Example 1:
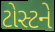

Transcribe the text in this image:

ટોસ્ટને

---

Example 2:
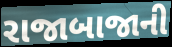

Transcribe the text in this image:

રાજાબાજાની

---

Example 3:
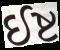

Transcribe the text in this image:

ઈષ્ટ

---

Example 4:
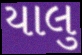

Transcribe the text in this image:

યાલુ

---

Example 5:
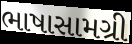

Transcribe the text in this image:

ભાષાસામગ્રી